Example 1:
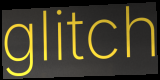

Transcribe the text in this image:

glitch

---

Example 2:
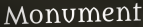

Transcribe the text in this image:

Monument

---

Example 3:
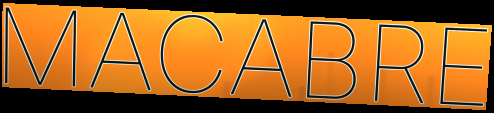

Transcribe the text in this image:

MACABRE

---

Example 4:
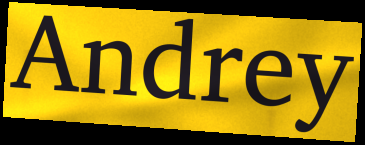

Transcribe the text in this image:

Andrey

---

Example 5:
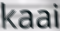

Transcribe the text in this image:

kaai